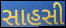
સાહસી